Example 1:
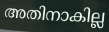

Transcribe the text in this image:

അതിനാകില്ല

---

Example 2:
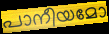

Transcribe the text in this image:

പാനീയമോ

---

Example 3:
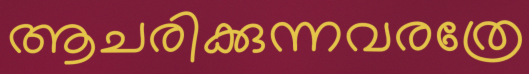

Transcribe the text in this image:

ആചരിക്കുന്നവരത്രേ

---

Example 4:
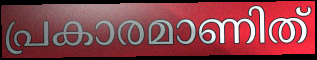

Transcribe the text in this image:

പ്രകാരമാണിത്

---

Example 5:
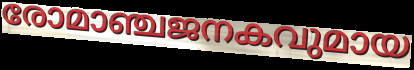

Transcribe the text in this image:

രോമാഞ്ചജനകവുമായ